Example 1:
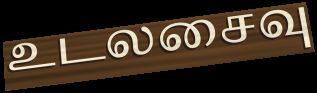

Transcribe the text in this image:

உடலசைவு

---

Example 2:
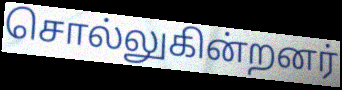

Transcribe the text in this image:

சொல்லுகின்றனர்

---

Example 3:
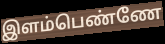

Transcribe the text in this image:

இளம்பெண்ணே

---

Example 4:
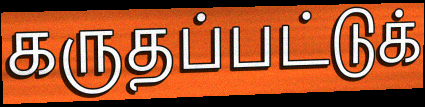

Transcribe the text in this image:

கருதப்பட்டுக்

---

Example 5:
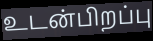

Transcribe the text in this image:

உடன்பிறப்பு